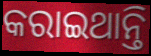
କରାଇଥାନ୍ତି